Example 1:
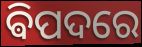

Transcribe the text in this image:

ଵିପଦରେ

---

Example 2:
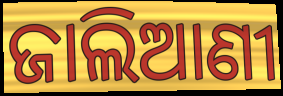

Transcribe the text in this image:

ଜାଲିଆଣୀ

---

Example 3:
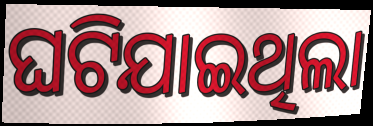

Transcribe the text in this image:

ଘଟିଯାଇଥିଲା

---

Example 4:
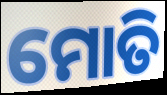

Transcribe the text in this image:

ମୋତି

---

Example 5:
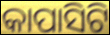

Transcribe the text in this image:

କାପାସିଟି